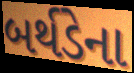
બર્થડેના